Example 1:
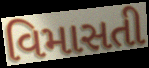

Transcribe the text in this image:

વિમાસતી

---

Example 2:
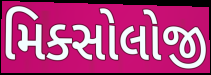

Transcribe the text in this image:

મિક્સોલોજી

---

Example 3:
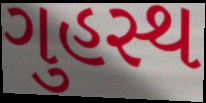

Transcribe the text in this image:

ગુહસ્થ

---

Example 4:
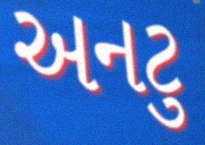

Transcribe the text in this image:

અનટુ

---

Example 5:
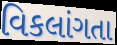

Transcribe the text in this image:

વિકલાંગતા